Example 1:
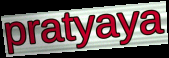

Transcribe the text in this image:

pratyaya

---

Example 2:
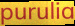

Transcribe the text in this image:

purulia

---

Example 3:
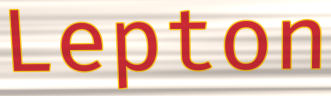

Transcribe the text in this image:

Lepton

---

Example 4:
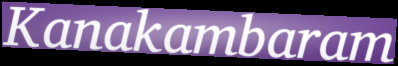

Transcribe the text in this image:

Kanakambaram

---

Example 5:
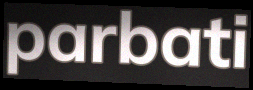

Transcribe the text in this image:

parbati